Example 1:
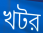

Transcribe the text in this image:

খটর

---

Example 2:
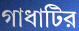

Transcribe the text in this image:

গাধাটির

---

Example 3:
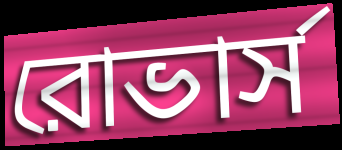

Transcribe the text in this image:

রোভার্স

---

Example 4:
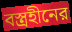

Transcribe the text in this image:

বস্ত্রহীনের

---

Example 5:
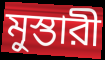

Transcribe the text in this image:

মুস্তারী